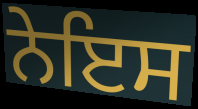
ਨੇਇਸ